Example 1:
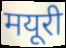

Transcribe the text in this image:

मयूरी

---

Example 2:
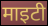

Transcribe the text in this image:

माइटी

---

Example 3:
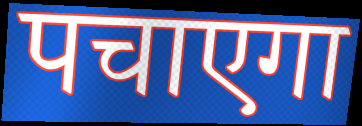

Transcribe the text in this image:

पचाएगा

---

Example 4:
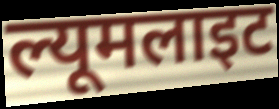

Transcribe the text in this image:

ल्यूमलाइट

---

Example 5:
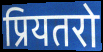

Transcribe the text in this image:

प्रियतरो